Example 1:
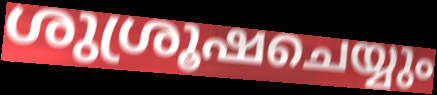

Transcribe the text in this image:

ശുശ്രൂഷചെയ്യും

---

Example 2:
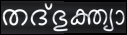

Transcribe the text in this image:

തദ്ഭുക്ത്യാ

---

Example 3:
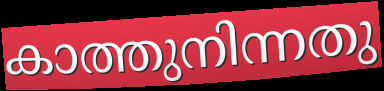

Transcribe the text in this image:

കാത്തുനിന്നതു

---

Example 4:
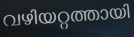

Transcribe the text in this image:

വഴിയറ്റത്തായി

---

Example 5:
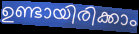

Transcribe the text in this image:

ഉണ്ടായിരിക്കാം